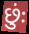
છુંઃ